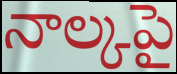
నాల్కపై